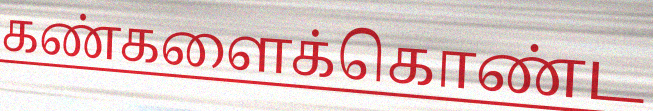
கண்களைக்கொண்ட